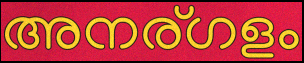
അനര്ഗളം